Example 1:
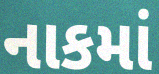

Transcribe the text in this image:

નાકમાં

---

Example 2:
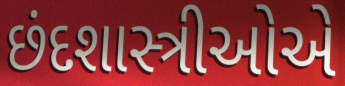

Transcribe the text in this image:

છંદશાસ્ત્રીઓએ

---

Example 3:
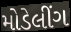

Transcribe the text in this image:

મોડેલીંગ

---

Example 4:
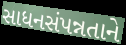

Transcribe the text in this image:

સાધનસંપન્નતાને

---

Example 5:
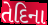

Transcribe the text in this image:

તેદિના